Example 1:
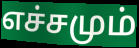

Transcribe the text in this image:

எச்சமும்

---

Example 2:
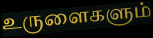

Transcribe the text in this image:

உருளைகளும்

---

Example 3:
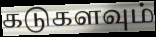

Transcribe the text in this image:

கடுகளவும்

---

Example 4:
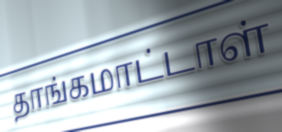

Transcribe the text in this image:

தாங்கமாட்டாள்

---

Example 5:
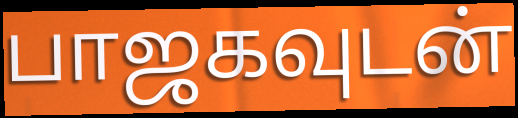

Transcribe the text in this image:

பாஜகவுடன்